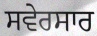
ਸਵੇਰਸਾਰ